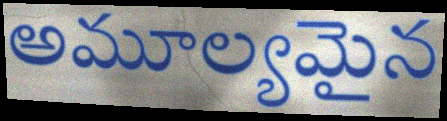
అమూల్యమైన